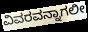
ವಿವರವನ್ನಾಗಲೀ